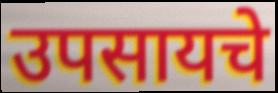
उपसायचे